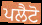
ਪਲੈਟੋ